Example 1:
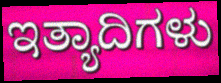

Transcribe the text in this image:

ಇತ್ಯಾದಿಗಳು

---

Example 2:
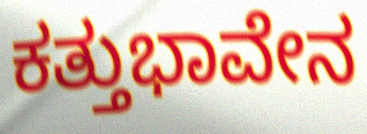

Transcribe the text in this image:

ಕತ್ತುಭಾವೇನ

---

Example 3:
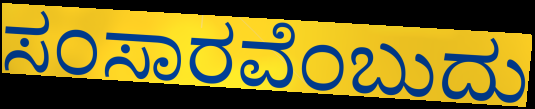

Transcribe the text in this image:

ಸಂಸಾರವೆಂಬುದು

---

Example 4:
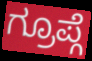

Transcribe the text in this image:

ಗ್ರೂಪ್ಗೆ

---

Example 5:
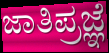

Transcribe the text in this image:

ಜಾತಿಪ್ರಜ್ಞೆ